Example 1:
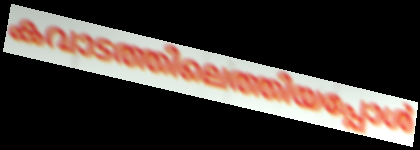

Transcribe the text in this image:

കവാടത്തിലെത്തിയപ്പോൾ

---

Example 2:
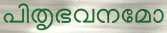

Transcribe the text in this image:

പിതൃഭവനമോ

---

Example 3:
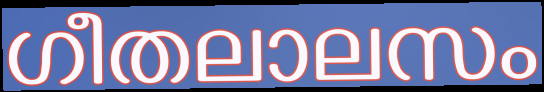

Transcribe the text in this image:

ഗീതലാലസം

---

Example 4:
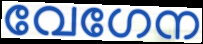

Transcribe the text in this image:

വേഗേന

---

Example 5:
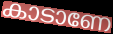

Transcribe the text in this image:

കാടാണേ